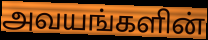
அவயங்களின்